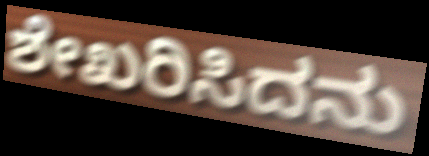
ಶೇಖರಿಸಿದನು